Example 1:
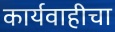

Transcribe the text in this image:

कार्यवाहीचा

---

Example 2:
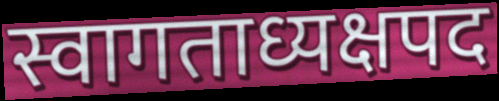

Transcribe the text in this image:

स्वागताध्यक्षपद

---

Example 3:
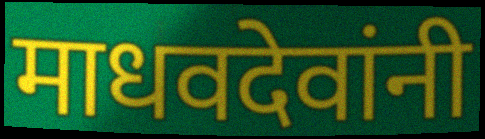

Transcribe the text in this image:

माधवदेवांनी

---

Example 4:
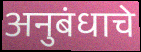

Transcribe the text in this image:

अनुबंधाचे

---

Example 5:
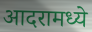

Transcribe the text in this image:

आदरामध्ये